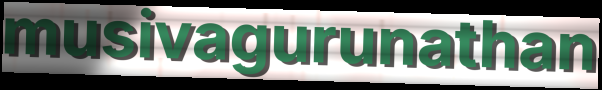
musivagurunathan